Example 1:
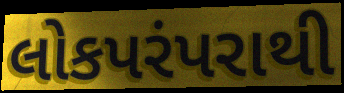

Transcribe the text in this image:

લોકપરંપરાથી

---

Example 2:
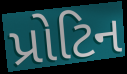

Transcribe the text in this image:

પ્રોટિન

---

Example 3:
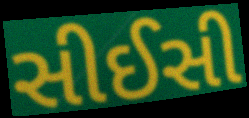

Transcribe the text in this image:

સીઈસી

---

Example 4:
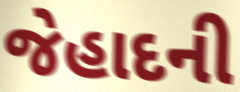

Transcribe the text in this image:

જેહાદની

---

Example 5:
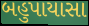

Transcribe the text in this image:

બહુપાયાસા